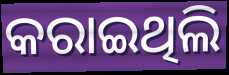
କରାଇଥିଲି